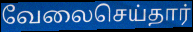
வேலைசெய்தார்